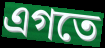
এগতে